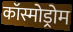
कॉस्मोड्रोम